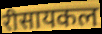
रीसायकल